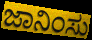
ಜಾನಿಂಸು